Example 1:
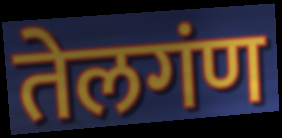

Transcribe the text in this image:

तेलगंण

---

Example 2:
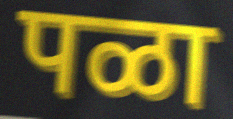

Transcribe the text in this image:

पळा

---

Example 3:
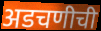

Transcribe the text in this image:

अडचणीची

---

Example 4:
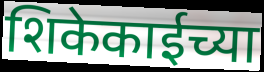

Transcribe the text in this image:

शिकेकाईच्या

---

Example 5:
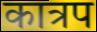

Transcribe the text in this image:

कात्रप